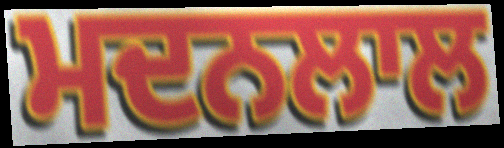
ਮਦਨਲਾਲ